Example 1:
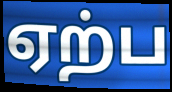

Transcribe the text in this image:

ஏற்ப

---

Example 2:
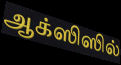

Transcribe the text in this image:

ஆக்ஸிஸில்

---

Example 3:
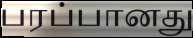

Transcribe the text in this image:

பரப்பானது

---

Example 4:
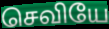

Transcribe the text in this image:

செவியே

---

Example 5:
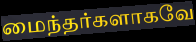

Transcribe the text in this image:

மைந்தர்களாகவே